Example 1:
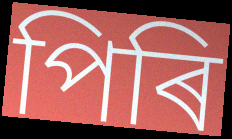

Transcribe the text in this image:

পিৰি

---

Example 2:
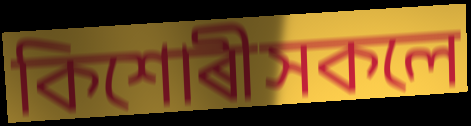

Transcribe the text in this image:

কিশোৰীসকলে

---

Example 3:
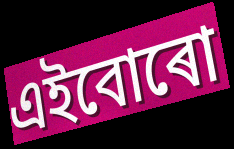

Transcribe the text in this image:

এইবোৰো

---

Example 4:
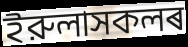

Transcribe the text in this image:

ইৰুলাসকলৰ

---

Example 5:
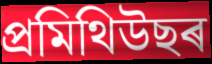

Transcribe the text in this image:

প্ৰমিথিউছৰ